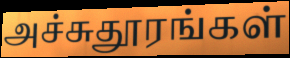
அச்சுதூரங்கள்